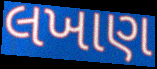
લખાણ